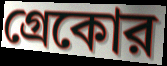
গ্রেকোর